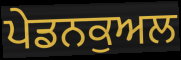
ਪੇਡਨਕੁਅਲ